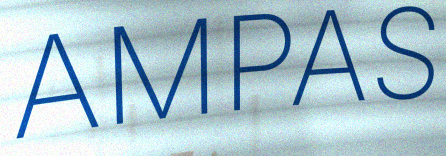
AMPAS